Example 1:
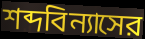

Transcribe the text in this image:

শব্দবিন্যাসের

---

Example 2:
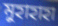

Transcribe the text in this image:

মুহাহাহা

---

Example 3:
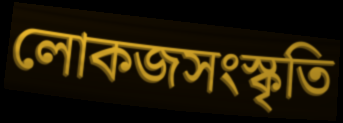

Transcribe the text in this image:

লোকজসংস্কৃতি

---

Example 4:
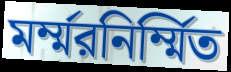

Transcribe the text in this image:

মর্ম্মরনির্ম্মিত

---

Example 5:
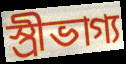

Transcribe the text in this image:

স্ত্রীভাগ্য